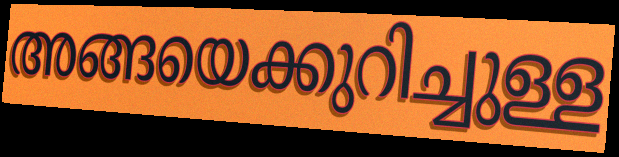
അങ്ങയെക്കുറിച്ചുള്ള